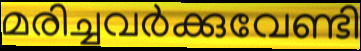
മരിച്ചവർക്കുവേണ്ടി